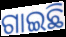
ଗାଇଛି